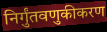
निर्गुंतवणुकीकरण